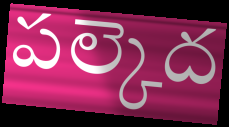
పల్కెద